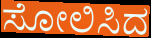
ಸೋಲಿಸಿದ